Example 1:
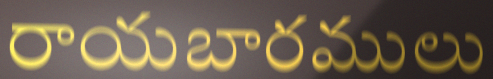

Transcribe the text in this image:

రాయబారములు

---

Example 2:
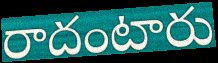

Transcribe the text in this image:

రాదంటారు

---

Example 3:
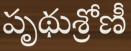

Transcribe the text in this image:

పృథుశ్రోణీ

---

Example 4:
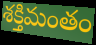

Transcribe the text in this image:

శక్తిమంతం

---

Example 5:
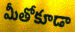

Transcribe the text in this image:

మీతోకూడా